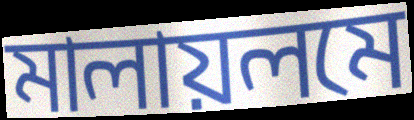
মালায়লমে